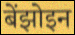
बेंझोइन